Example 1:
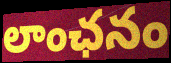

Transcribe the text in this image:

లాంఛనం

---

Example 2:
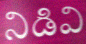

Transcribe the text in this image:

నిడివి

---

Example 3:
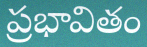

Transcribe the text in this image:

ప్రభావితం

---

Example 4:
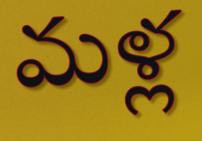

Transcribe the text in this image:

మళ్ల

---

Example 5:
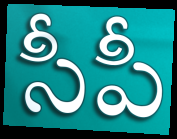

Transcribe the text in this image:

సీపీ